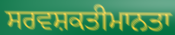
ਸਰਵਸ਼ਕਤੀਮਾਨਤਾ